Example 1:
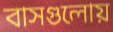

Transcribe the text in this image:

বাসগুলোয়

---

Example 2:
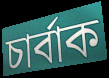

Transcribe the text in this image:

চার্বাক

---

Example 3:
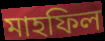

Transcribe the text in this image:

মাহফিল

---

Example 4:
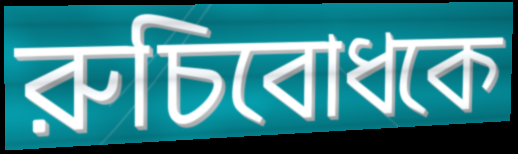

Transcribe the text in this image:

রুচিবোধকে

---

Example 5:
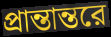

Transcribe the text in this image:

প্রান্তান্তরে